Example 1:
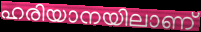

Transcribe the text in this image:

ഹരിയാനയിലാണ്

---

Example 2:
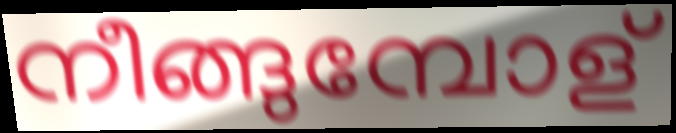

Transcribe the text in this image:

നീങ്ങുമ്പോള്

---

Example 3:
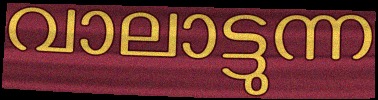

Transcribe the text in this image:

വാലാട്ടുന്ന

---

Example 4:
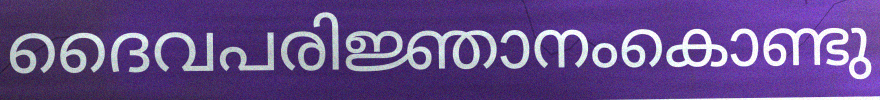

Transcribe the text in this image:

ദൈവപരിജ്ഞാനംകൊണ്ടു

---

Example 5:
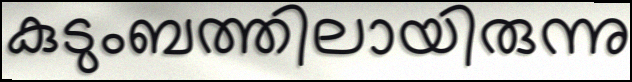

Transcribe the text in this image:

കുടുംബത്തിലായിരുന്നു